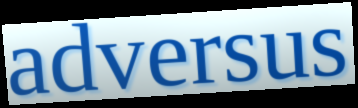
adversus